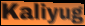
Kaliyug